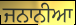
ਜਨਾਨੀਆ